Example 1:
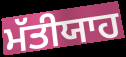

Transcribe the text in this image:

ਮੱਤੀਯਾਹ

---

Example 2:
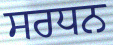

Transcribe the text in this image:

ਸਰਧਨ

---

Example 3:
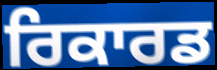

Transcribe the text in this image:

ਰਿਕਾਰਡ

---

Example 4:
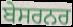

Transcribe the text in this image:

ਬੇਸਰਨਰ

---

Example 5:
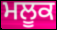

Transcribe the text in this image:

ਮਲੂਕ